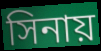
সিনায়